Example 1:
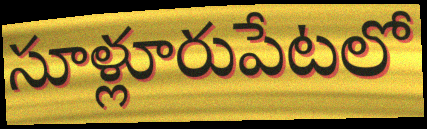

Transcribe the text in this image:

సూళ్లూరుపేటలో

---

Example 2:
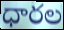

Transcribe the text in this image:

ధారల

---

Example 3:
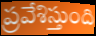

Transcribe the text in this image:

ప్రవేశిస్తుంది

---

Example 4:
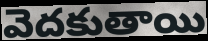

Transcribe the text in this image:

వెదకుతాయి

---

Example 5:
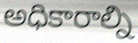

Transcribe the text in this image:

అధికారాల్ని